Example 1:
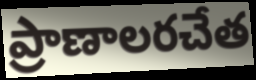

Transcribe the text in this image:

ప్రాణాలరచేత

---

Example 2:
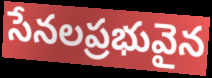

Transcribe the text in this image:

సేనలప్రభువైన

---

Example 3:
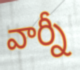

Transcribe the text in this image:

వార్నీ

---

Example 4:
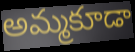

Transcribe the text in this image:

అమ్మకూడా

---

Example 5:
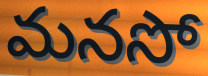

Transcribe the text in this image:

మనసో